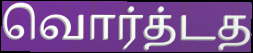
வொர்த்டத